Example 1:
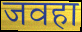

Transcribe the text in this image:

जवहा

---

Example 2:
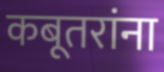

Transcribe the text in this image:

कबूतरांना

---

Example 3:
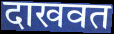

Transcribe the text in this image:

दाखवत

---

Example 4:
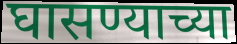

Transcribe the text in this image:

घासण्याच्या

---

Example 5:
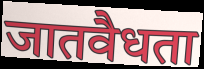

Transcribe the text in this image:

जातवैधता